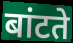
बांटते